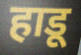
हाडू